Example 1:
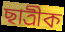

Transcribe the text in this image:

ছাত্ৰীক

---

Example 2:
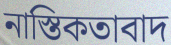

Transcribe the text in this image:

নাস্তিকতাবাদ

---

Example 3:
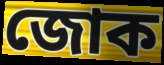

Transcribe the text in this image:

জোক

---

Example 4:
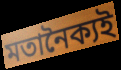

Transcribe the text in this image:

মতানৈক্যই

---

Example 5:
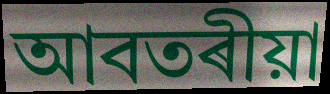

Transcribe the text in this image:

আবতৰীয়া